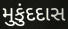
મુકુંદદાસ